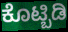
ಕೊಟ್ಬಿಡಿ